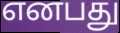
எனபது